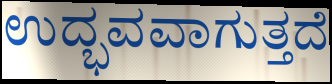
ಉದ್ಭವವಾಗುತ್ತದೆ